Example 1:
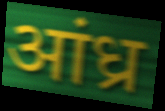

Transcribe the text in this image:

आंध्र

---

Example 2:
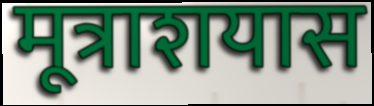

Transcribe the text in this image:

मूत्राशयास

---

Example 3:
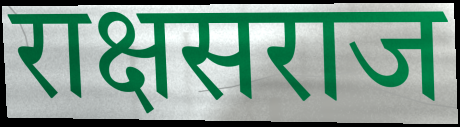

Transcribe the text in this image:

राक्षसराज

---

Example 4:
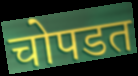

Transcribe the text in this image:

चोपडत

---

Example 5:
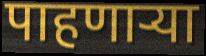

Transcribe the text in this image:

पाहणाऱ्या